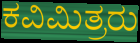
ಕವಿಮಿತ್ರರು